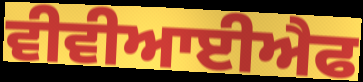
ਵੀਵੀਆਈਐਫ